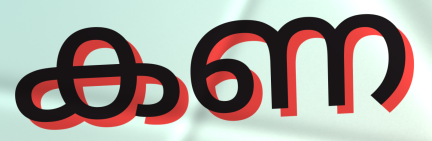
കണ